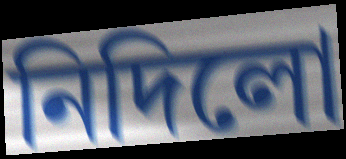
নিদিলো